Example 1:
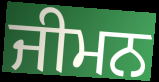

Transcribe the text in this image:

ਜੀਮਨ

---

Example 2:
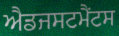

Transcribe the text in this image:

ਐਡਜਸਟਮੈਂਟਸ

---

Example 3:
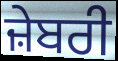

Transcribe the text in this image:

ਜ਼ੇਬਰੀ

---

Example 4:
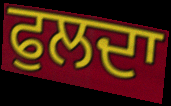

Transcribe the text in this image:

ਫੁਲਦਾ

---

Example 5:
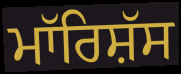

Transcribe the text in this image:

ਮਾੱਰਿਸ਼ੱਸ